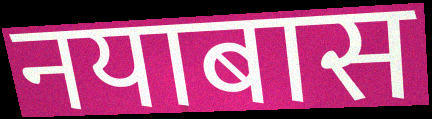
नयाबास